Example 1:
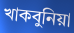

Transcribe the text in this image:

খাকবুনিয়া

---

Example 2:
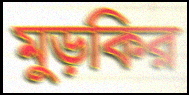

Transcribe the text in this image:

মুড়কির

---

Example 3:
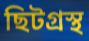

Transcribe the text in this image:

ছিটগ্রস্থ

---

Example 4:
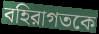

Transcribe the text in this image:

বহিরাগতকে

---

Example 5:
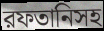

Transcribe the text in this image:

রফতানিসহ